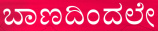
ಬಾಣದಿಂದಲೇ